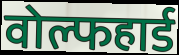
वोल्फहार्ड